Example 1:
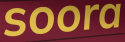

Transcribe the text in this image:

soora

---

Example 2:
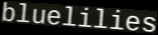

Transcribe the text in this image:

bluelilies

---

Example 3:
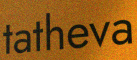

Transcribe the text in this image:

tatheva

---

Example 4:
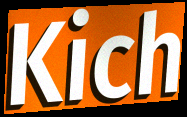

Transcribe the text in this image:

Kich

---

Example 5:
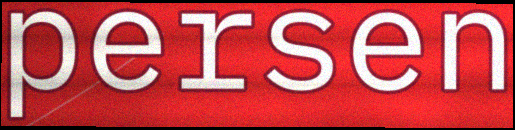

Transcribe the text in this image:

persen